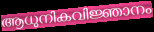
ആധുനികവിജ്ഞാനം